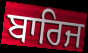
ਬਾਰਿਜ